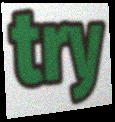
try